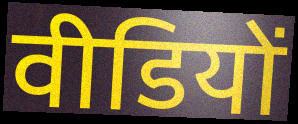
वीडियों